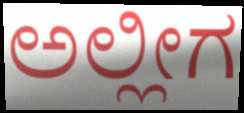
ಅಲ್ಲೀಗ